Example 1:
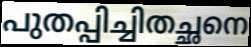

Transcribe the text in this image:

പുതപ്പിച്ചിതച്ഛനെ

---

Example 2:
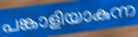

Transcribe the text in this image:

പങ്കാളിയാകുന്ന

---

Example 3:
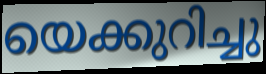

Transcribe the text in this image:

യെക്കുറിച്ചു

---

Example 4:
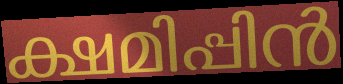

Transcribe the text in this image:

ക്ഷമിപ്പിൻ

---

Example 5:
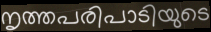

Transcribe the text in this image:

നൃത്തപരിപാടിയുടെ